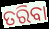
ତରିବା